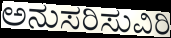
ಅನುಸರಿಸುವಿರಿ